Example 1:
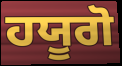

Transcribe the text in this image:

ਹਯੂਗੋ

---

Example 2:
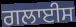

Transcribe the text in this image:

ਗਲਾਈਸ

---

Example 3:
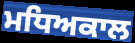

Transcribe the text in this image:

ਮਧਿਅਕਾਲ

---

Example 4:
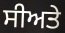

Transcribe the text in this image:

ਸੀਅਤੇ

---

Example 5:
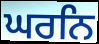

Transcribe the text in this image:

ਘਰਨਿ